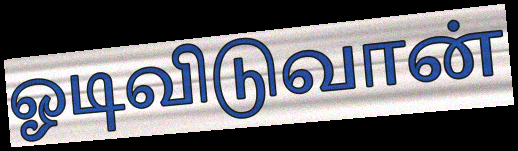
ஓடிவிடுவான்